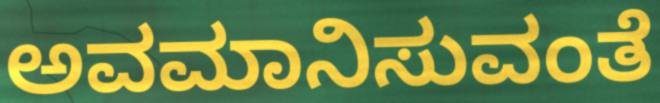
ಅವಮಾನಿಸುವಂತೆ